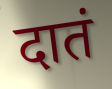
दातं